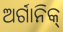
ଅର୍ଗାନିକ୍